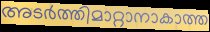
അടർത്തിമാറ്റാനാകാത്ത